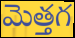
మెత్తగ